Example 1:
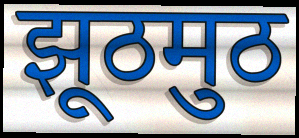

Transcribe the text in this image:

झूठमुठ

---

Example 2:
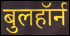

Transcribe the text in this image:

बुलहॉर्न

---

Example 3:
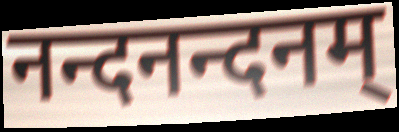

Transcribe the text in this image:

नन्दनन्दनम्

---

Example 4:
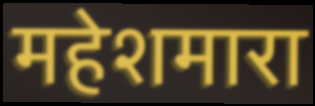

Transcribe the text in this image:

महेशमारा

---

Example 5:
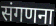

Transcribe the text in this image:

संगणना